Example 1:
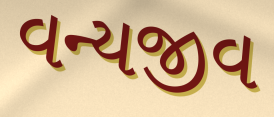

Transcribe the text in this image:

વન્યજીવ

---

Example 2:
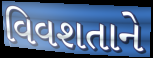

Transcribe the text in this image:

વિવશતાને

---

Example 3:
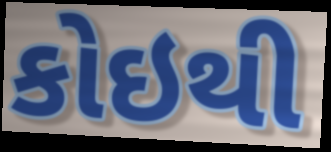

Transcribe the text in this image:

કોઇથી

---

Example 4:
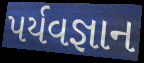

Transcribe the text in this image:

પર્યવજ્ઞાન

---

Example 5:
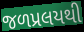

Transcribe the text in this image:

જળપ્રલયથી